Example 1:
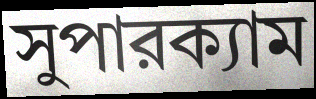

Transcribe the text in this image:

সুপারক্যাম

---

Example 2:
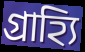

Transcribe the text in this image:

গ্রাহ্যি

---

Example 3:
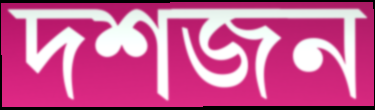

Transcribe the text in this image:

দশজন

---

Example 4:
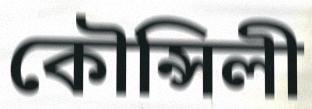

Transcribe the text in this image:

কৌন্সিলী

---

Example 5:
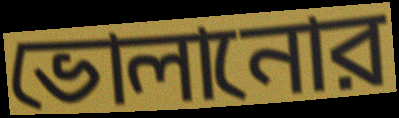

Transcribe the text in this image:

ভোলানোর